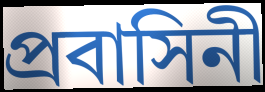
প্রবাসিনী